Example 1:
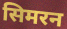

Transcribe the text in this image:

सिमरन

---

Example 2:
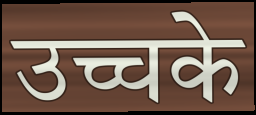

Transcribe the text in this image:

उच्चके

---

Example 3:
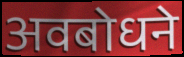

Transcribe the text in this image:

अवबोधने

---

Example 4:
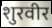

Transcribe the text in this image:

शुरवीर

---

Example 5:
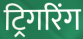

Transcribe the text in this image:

ट्रिगरिंग